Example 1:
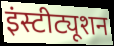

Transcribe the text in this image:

इंस्‍टीट्यूशन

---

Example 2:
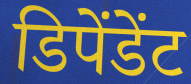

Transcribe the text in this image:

डिपेंडेंट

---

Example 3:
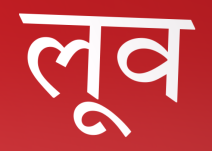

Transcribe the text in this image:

लूव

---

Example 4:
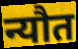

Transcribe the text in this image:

न्यौत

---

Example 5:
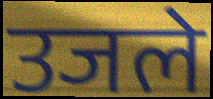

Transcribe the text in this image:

उजले